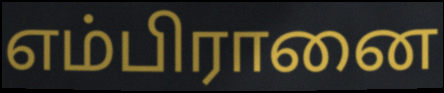
எம்பிரானை